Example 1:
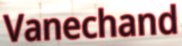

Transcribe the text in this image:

Vanechand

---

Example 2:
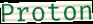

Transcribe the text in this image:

Proton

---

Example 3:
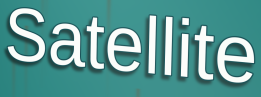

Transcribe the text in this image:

Satellite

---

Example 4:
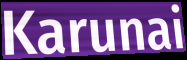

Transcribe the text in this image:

Karunai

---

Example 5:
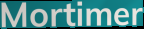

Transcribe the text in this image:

Mortimer